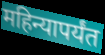
महिन्यापर्यंत